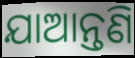
ଯାଆନ୍ତଣି